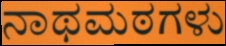
ನಾಥಮಠಗಳು